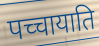
पच्चायाति